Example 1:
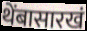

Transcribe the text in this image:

थेंबासारखं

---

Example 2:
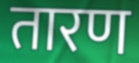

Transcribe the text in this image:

तारण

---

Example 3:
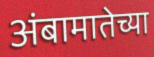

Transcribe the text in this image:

अंबामातेच्या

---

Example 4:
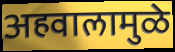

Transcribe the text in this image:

अहवालामुळे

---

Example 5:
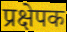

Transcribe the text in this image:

प्रक्षेपक